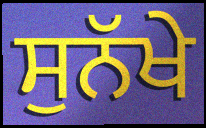
ਸੁਨੱਖੇ